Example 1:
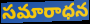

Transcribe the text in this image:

సమారాధన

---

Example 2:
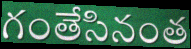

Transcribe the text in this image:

గంతేసినంత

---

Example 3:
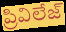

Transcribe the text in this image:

ప్రివిలేజ్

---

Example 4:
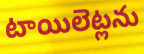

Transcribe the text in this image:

టాయిలెట్లను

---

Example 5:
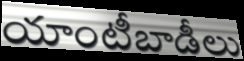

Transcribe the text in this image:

యాంటీబాడీలు